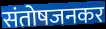
संतोषजनकर